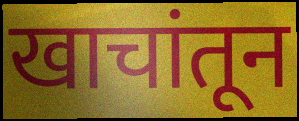
खाचांतून